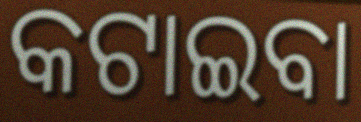
କଟାଇବା